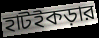
হাটইকড়ার